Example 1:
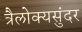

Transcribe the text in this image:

त्रैलोक्यसुंदर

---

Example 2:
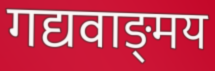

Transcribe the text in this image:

गद्यवाङ्मय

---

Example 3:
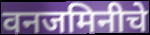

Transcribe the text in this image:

वनजमिनीचे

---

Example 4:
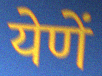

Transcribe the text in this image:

येणें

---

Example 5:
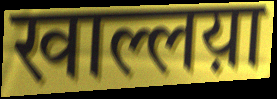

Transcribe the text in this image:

खाल्लय़ा